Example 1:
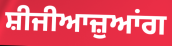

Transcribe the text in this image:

ਸ਼ੀਜੀਆਜ਼ੁਆਂਗ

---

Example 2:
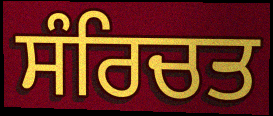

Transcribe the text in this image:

ਸੰਰਿਚਤ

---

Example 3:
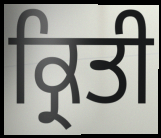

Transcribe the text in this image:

ਕ੍ਰਿਤੀ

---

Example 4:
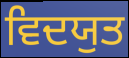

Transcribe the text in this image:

ਵਿਦਯੁਤ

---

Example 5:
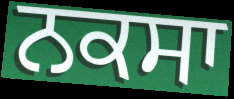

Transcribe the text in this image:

ਨਕਸਾ